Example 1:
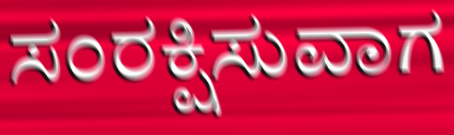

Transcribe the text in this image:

ಸಂರಕ್ಷಿಸುವಾಗ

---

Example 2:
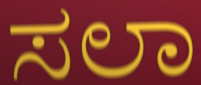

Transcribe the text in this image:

ಸಲಾ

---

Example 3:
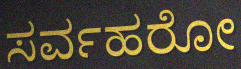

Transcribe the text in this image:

ಸರ್ವಹರೋ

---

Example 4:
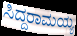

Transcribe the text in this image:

ಸಿದ್ದರಾಮಯ್ಯ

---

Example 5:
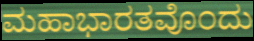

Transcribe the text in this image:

ಮಹಾಭಾರತವೊಂದು